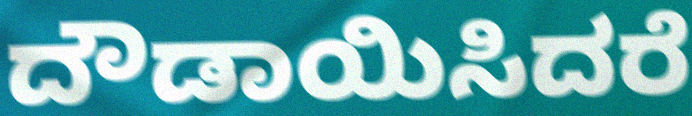
ದೌಡಾಯಿಸಿದರೆ